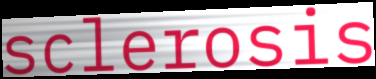
sclerosis